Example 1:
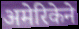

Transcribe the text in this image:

अमेरिकेने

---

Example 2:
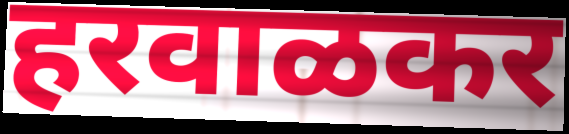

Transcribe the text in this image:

हरवाळकर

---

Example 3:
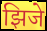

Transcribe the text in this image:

झिजे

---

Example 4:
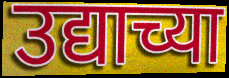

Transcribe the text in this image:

उद्याच्या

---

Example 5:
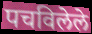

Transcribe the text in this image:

पचविलेले